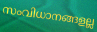
സംവിധാനങ്ങളല്ല